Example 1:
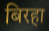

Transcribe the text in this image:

बिरहा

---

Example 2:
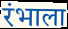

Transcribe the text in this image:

रंभाला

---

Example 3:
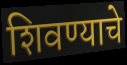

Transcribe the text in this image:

शिवण्याचे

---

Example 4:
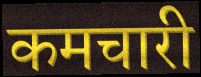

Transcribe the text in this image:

कमचारी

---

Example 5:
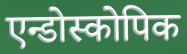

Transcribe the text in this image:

एन्डोस्कोपिक